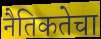
नैतिकतेचा